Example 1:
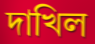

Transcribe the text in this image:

দাখিল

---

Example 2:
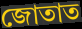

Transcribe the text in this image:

জোতাত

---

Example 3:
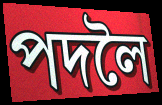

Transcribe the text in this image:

পদলৈ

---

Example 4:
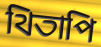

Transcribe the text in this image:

থিতাপি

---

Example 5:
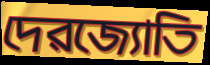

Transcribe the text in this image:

দেৱজ্যোতি